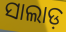
ସାଲାଡ଼